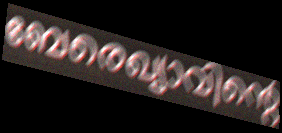
ബേരെഖ്യാവിന്റെ